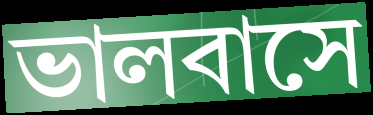
ভালবাসে